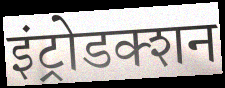
इंट्रोडक्शन